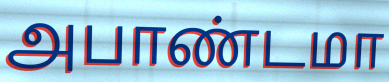
அபாண்டமா